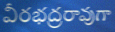
వీరభద్రరావుగా